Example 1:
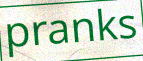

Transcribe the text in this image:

pranks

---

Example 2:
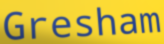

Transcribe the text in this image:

Gresham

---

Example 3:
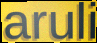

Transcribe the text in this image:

aruli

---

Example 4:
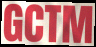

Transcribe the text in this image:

GCTM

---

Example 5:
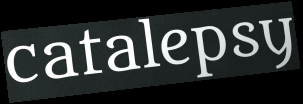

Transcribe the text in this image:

catalepsy